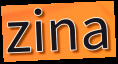
zina